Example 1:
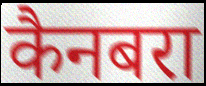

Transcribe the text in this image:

कैनबरा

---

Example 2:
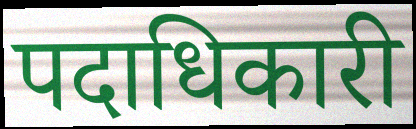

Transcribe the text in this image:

पदाधिकारी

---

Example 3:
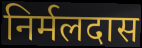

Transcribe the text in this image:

निर्मलदास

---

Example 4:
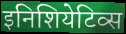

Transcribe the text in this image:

इनिशियेटिव्स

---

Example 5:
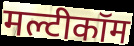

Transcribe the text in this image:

मल्टीकॉम